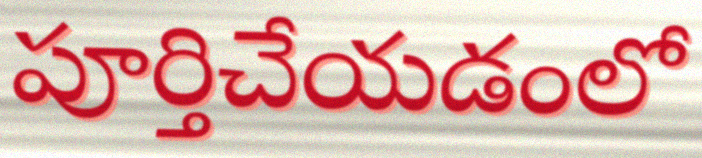
పూర్తిచేయడంలో